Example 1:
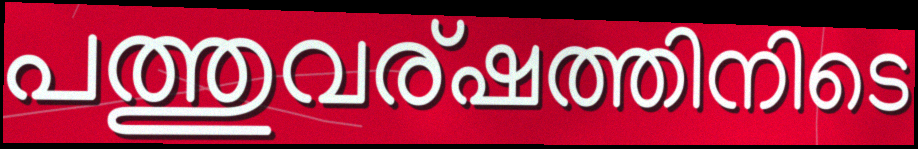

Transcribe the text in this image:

പത്തുവര്ഷത്തിനിടെ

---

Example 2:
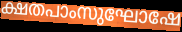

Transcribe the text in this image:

ക്ഷതപാംസുഘോഷേ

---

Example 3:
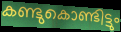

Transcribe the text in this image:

കണ്ടുകൊണ്ടിട്ടും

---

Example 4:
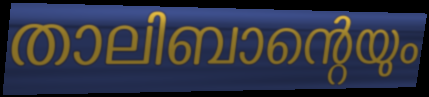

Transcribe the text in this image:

താലിബാന്റെയും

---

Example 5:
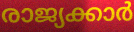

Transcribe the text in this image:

രാജ്യക്കാർ